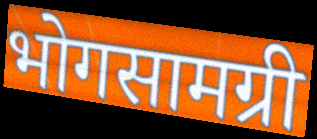
भोगसामग्री